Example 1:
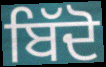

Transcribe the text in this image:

ਬਿੱਦੋ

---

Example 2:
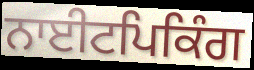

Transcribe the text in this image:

ਨਾਈਟਪਿਕਿੰਗ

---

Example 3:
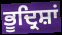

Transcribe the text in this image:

ਭੂਦ੍ਰਿਸ਼ਾਂ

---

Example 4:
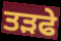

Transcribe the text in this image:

ਤੜਫੇ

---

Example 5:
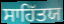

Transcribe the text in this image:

ਸਾਹਿੱਤਯ